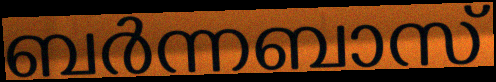
ബർന്നബാസ്